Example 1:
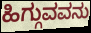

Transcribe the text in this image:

ಹಿಗ್ಗುವವನು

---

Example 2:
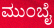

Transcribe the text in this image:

ಮುಂಬೈ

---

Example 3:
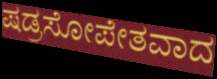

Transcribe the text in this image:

ಷಡ್ರಸೋಪೇತವಾದ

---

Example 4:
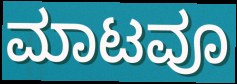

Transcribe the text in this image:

ಮಾಟವೂ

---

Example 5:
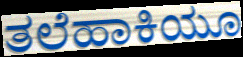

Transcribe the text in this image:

ತಲೆಹಾಕಿಯೂ